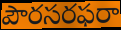
పౌరసరఫరా